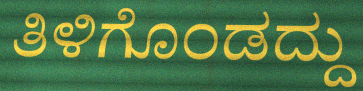
ತಿಳಿಗೊಂಡದ್ದು